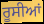
ਰੂਸੀਆਂ